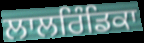
ਲਾਲਰਿੰਡਿਕਾ